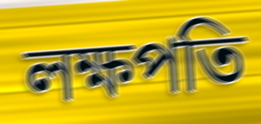
লক্ষপতি